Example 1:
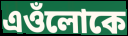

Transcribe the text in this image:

এওঁলোকে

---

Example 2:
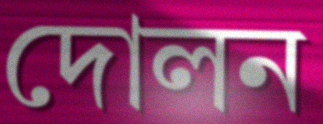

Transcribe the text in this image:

দোলন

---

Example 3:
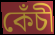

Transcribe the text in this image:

কেঁচী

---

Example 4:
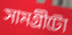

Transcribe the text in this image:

সামগ্ৰীটো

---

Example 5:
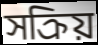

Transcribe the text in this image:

সক্ৰিয়